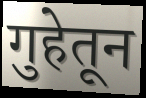
गुहेतून